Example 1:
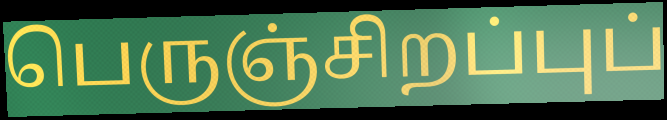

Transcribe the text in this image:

பெருஞ்சிறப்புப்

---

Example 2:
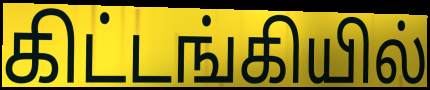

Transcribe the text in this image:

கிட்டங்கியில்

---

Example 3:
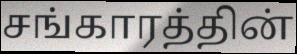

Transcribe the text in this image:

சங்காரத்தின்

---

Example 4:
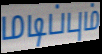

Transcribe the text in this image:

மடிப்பும்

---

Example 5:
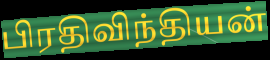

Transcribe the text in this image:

பிரதிவிந்தியன்